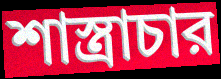
শাস্ত্রাচার